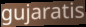
gujaratis